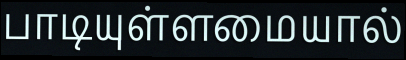
பாடியுள்ளமையால்